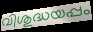
വിശുദ്ധയപ്പം